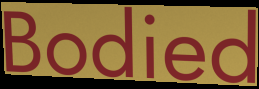
Bodied